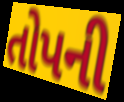
તોપની